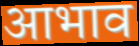
आभाव